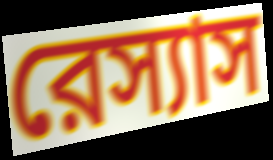
রেস্যাস